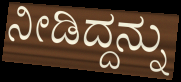
ನೀಡಿದ್ದನ್ನು